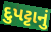
દુપટ્ટાનું